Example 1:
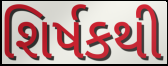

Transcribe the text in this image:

શિર્ષકથી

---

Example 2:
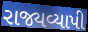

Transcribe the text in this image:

રાજ્યવ્યાપી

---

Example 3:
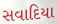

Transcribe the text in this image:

સવાદિયા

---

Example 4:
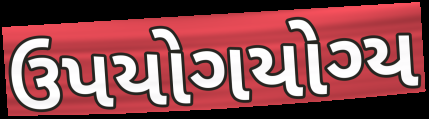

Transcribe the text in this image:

ઉપયોગયોગ્ય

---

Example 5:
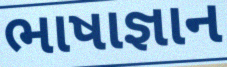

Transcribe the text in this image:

ભાષાજ્ઞાન